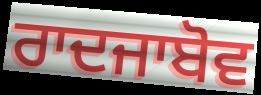
ਰਾਦਜਾਬੋਵ